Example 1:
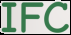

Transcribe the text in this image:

IFC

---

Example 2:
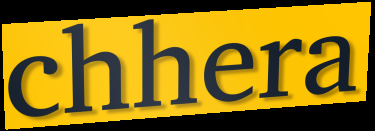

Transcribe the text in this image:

chhera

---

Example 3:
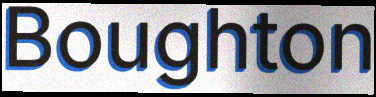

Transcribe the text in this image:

Boughton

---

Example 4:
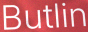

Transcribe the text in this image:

Butlin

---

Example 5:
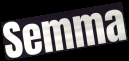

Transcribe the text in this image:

Semma